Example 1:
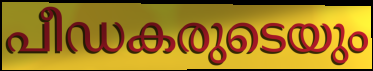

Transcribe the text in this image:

പീഡകരുടെയും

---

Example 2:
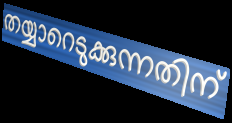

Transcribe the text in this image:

തയ്യാറെടുക്കുന്നതിന്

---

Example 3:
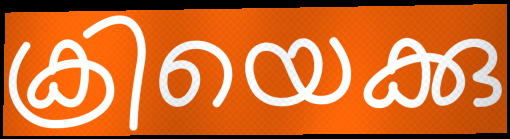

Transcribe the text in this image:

ക്രിയെക്കു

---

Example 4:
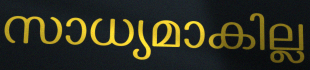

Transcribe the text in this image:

സാധ്യമാകില്ല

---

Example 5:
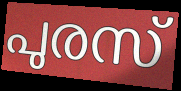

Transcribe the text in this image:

പുരസ്